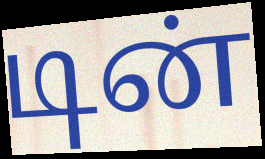
டின்